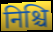
निश्चि